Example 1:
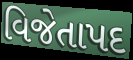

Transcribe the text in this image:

વિજેતાપદ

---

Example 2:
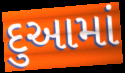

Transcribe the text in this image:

દુઆમાં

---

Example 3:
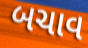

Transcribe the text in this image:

બચાવ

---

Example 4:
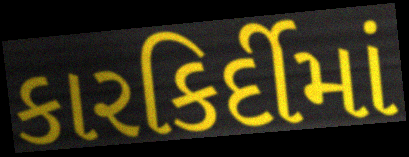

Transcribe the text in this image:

કારકિર્દીમાં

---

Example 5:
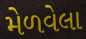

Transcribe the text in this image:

મેળવેલા